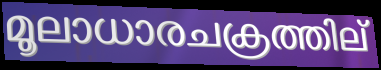
മൂലാധാരചക്രത്തില്